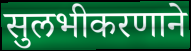
सुलभीकरणाने